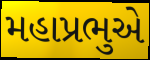
મહાપ્રભુએ